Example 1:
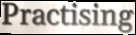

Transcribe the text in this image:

Practising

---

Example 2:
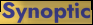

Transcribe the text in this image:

Synoptic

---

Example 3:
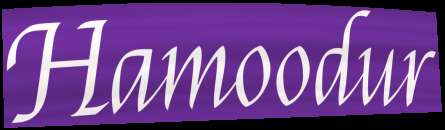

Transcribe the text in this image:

Hamoodur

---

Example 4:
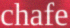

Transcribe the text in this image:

chafe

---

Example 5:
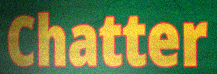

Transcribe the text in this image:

Chatter